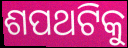
ଶପଥଟିକୁ